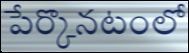
పేర్కొనటంలో